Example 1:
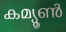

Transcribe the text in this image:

കമ്യൂൺ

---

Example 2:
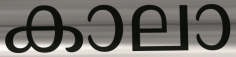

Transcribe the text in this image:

കാലാ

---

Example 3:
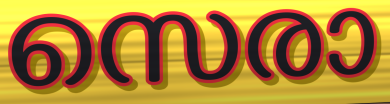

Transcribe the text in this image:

സെരാ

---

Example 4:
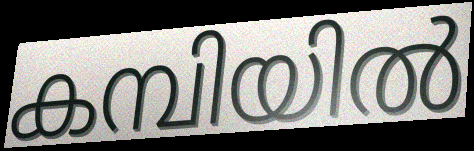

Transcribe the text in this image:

കമ്പിയിൽ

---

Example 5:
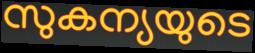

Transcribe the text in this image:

സുകന്യയുടെ